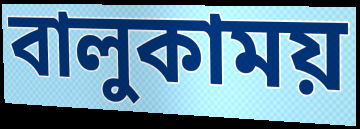
বালুকাময়